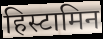
हिस्टामिन